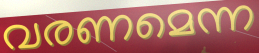
വരണമെന്ന